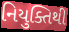
નિયુક્તિથી